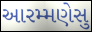
આરમ્મણેસુ